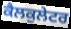
ਕੈਲਕੁਲੇਟਰ